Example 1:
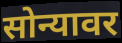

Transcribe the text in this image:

सोन्यावर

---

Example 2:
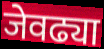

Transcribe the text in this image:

जेवढ्या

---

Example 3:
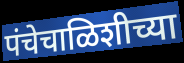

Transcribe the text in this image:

पंचेचाळिशीच्या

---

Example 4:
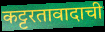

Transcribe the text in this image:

कट्टरतावादाची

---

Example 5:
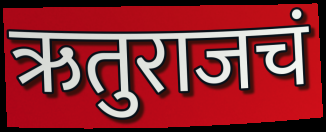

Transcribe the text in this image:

ऋतुराजचं